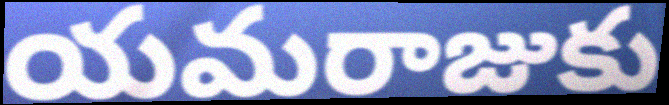
యమరాజుకు